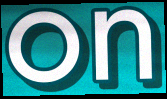
on